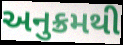
અનુક્રમથી